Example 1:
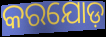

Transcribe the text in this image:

କରଯୋଡ଼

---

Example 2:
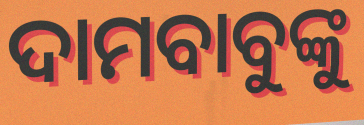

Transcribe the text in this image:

ଦାମବାବୁଙ୍କୁ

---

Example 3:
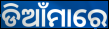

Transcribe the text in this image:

ଡିଆଁମାରେ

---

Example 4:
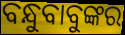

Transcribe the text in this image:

ବନ୍ଧୁବାବୁଙ୍କର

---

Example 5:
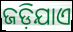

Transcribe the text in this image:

ଜଡ଼ିଯାଏ